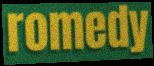
romedy